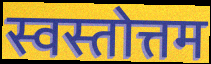
स्वस्तोत्तम